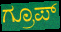
ಗ್ರೂಪ್